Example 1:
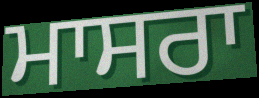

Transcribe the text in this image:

ਮਾਸਰਾ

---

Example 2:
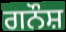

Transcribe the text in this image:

ਗਨੌਸ਼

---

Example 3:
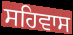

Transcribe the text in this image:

ਸਹਿਵਾਸ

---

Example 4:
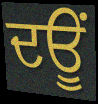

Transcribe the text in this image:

ਦਊਂ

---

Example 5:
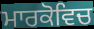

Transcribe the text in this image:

ਮਾਰਕੋਵਿਚ